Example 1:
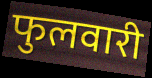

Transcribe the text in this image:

फुलवारी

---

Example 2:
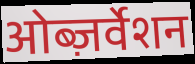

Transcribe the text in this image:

ओब्ज़र्वेशन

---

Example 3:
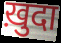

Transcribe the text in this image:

ख़ुदा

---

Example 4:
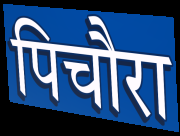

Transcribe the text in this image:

पिचौरा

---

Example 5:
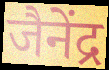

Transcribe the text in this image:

जैनेंद्र